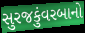
સુરજકુંવરબાનો